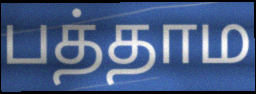
பத்தாம